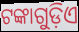
ଟଙ୍କାଗୁଡ଼ିଏ